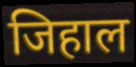
जिहाल